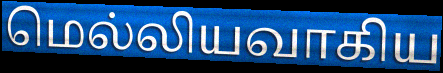
மெல்லியவாகிய